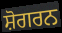
ਸ਼ੋਗਰਨ